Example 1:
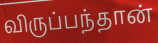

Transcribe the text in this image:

விருப்பந்தான்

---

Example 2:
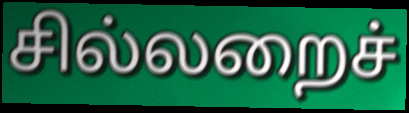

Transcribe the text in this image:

சில்லறைச்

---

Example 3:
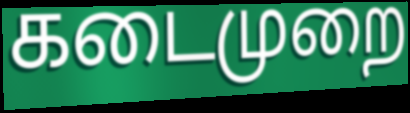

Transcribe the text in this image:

கடைமுறை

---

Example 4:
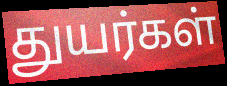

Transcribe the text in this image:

துயர்கள்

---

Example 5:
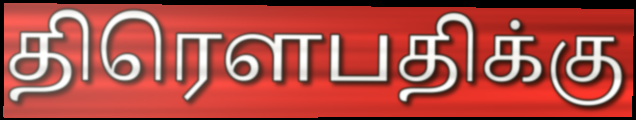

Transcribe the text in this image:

திரௌபதிக்கு